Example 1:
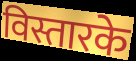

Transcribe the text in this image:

विस्तारके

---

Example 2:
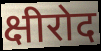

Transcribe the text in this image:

क्षीरोद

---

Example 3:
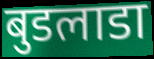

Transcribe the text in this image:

बुडलाडा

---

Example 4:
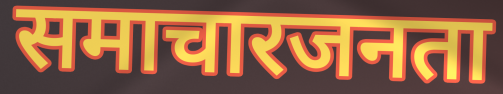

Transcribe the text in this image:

समाचारजनता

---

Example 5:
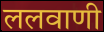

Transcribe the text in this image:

ललवाणी